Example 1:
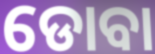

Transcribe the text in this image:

ଡୋବା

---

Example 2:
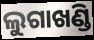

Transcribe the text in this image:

ଲୁଗାଖଣ୍ଡି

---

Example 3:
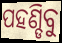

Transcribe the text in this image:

ପହଣ୍ଡିବୁ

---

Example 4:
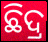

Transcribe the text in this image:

ଛିଦ୍ର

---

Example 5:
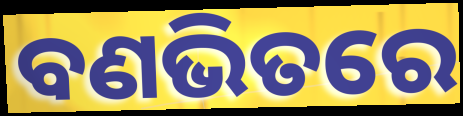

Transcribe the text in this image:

ବଣଭିତରେ